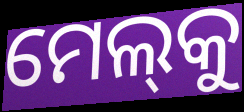
ମେଲ୍‌କୁ